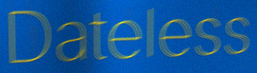
Dateless